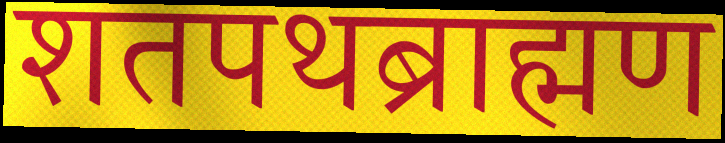
शतपथब्राह्मण